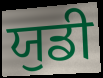
ਯੁਡੀ